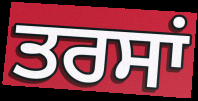
ਤਰਸਾਂ